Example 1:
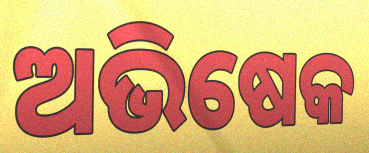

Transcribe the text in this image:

ଅଭିଷେକ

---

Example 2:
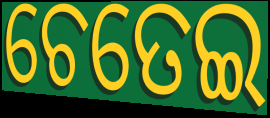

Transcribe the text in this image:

ଚେତେଇ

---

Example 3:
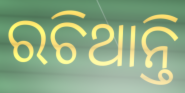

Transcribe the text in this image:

ରଚିଥାନ୍ତି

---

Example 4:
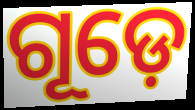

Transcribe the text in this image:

ଗୂଡ଼େ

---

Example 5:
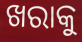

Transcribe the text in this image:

ଖରାକୁ